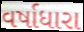
વર્ષાધારા